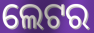
ଲେଟର